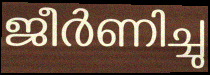
ജീർണിച്ചു